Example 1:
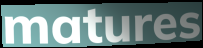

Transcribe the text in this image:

matures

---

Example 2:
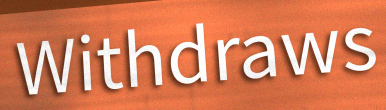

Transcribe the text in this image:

Withdraws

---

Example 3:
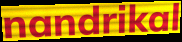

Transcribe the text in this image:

nandrikal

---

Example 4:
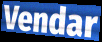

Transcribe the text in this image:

Vendar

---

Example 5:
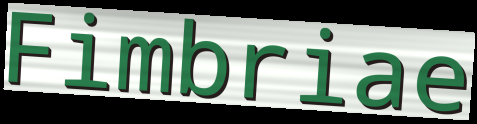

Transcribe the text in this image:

Fimbriae